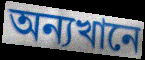
অন্যখানে